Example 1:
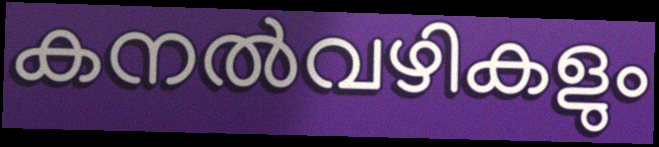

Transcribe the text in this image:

കനൽവഴികളും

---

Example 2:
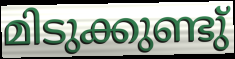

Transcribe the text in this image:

മിടുക്കുണ്ടു്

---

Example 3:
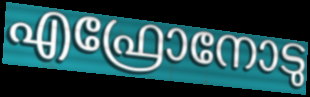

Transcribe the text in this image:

എഫ്രോനോടു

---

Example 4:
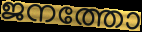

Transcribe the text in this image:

ജനത്തോ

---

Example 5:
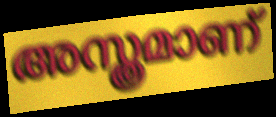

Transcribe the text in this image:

അസ്ത്രമാണ്